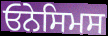
ਓਨੇਸਿਮਸ